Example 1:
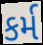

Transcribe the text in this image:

કર્મ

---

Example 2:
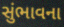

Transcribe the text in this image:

સુંભાવના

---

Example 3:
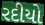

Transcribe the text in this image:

રદીયો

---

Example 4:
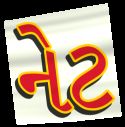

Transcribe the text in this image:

નેટ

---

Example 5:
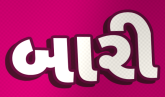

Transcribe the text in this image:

બારી